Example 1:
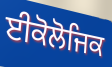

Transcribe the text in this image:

ਈਕੋਲੋਜਿਕ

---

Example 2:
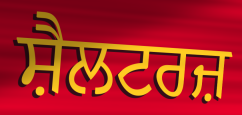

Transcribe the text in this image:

ਸ਼ੈਲਟਰਜ਼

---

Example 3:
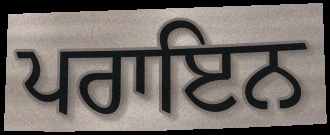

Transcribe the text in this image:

ਪਰਾਇਨ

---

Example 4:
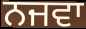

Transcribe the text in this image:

ਨਜਵਾ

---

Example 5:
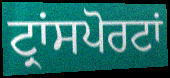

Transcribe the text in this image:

ਟ੍ਰਾਂਸਪੋਰਟਾਂ